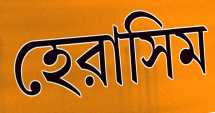
হেরাসিম